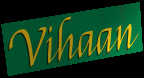
Vihaan